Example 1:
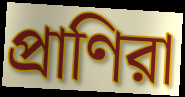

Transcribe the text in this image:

প্রাণিরা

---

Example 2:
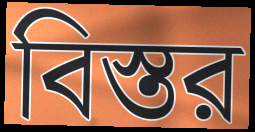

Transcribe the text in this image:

বিস্তর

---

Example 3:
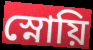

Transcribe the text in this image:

স্নোয়ি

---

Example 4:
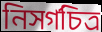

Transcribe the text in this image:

নিসর্গচিত্র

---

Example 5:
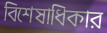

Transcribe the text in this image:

বিশেষাধিকার